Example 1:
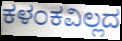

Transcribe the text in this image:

ಕಳಂಕವಿಲ್ಲದ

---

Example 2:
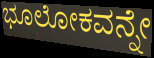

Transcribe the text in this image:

ಭೂಲೋಕವನ್ನೇ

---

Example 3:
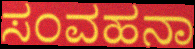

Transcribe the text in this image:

ಸಂವಹನಾ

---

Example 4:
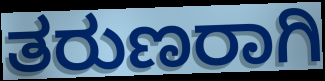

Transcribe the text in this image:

ತರುಣರಾಗಿ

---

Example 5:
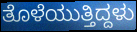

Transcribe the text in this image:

ತೊಳೆಯುತ್ತಿದ್ದಳು